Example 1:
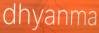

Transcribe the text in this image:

dhyanma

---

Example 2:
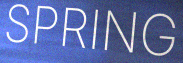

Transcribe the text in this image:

SPRING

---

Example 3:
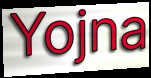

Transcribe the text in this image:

Yojna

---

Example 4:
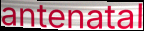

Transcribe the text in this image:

antenatal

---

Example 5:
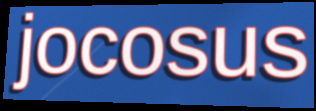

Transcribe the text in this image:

jocosus